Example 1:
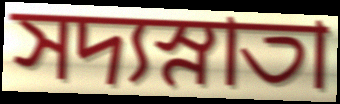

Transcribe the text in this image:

সদ্যস্নাতা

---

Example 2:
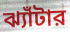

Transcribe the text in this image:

ঝ্যাঁটার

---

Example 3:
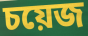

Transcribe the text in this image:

চয়েজ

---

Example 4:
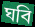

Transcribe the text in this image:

ঘবি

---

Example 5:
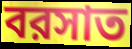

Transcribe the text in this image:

বরসাত